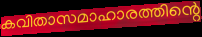
കവിതാസമാഹാരത്തിന്റെ